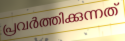
പ്രവർത്തിക്കുന്നത്